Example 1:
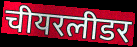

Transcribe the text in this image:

चीयरलीडर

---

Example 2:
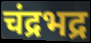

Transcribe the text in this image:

चंद्रभद्र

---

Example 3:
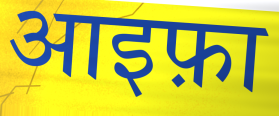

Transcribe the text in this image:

आइफ़ा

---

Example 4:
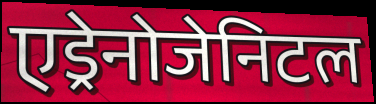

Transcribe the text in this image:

एड्रेनोजेनिटल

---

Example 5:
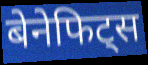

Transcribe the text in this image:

बेनेफिट्स